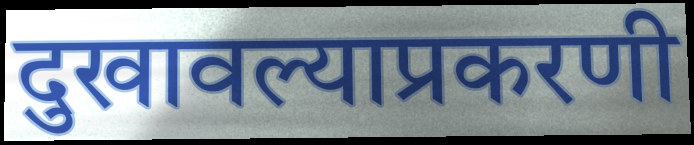
दुखावल्याप्रकरणी